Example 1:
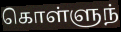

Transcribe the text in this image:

கொள்ளுந்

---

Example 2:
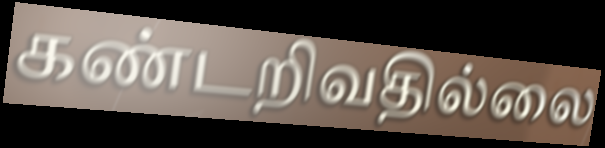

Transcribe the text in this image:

கண்டறிவதில்லை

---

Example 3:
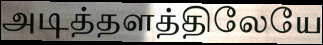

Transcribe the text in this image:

அடித்தளத்திலேயே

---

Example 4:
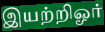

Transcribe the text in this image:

இயற்றிஓர்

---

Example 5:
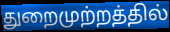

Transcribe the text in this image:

துறைமுற்றத்தில்